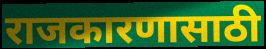
राजकारणासाठी